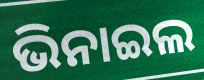
ଭିନାଇଲ